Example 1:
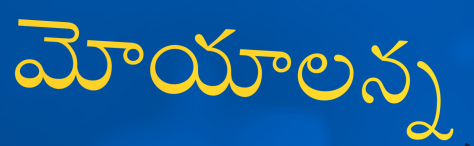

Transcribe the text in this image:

మోయాలన్న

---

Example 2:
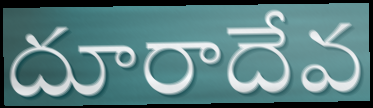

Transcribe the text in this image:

దూరాదేవ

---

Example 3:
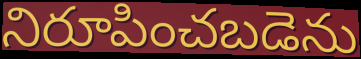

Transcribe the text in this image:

నిరూపించబడెను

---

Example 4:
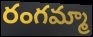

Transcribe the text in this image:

రంగమ్మా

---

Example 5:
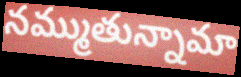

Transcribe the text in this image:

నమ్ముతున్నామా